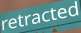
retracted